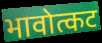
भावोत्कट